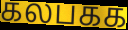
கலபகக